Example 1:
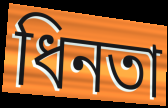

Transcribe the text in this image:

ধিনতা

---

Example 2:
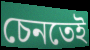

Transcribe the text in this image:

চেনতেই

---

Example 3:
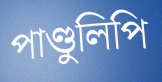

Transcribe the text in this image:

পাণ্ডুলিপি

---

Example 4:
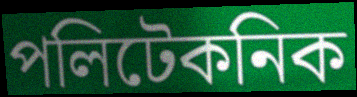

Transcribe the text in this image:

পলিটেকনিক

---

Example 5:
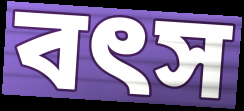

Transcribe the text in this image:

বৎস